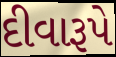
દીવારૂપે